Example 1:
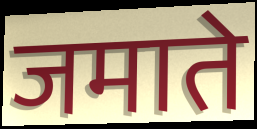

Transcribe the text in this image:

जमाते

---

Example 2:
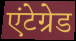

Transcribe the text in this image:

एंटेग्रेड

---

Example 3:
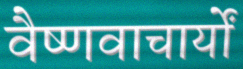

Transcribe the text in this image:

वैष्णवाचार्यों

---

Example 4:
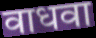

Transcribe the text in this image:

वाधवा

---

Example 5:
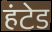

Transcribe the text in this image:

हंटेड